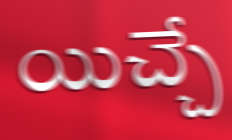
యిచ్చే